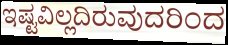
ಇಷ್ಟವಿಲ್ಲದಿರುವುದರಿಂದ